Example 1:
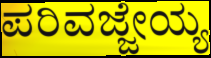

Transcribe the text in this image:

ಪರಿವಜ್ಜೇಯ್ಯ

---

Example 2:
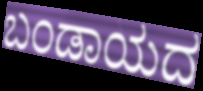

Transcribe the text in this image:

ಬಂಡಾಯದ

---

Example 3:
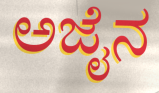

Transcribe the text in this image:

ಅಜೈನ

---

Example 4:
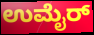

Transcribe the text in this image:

ಉಮೈರ್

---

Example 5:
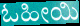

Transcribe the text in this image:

ಓಹೀಯಿ